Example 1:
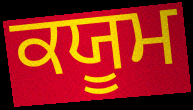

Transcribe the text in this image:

ਕਯੂਮ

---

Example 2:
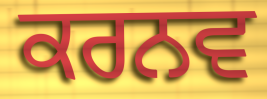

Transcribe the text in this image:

ਕਰਨਵ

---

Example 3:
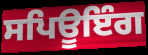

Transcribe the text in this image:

ਸਪਿਊਇੰਗ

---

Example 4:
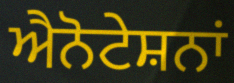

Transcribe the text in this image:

ਐਨੋਟੇਸ਼ਨਾਂ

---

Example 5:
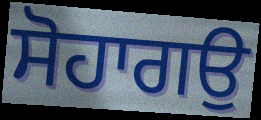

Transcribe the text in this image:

ਸੋਹਾਗਉ